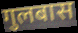
गुलबास